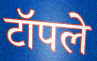
टॉपले